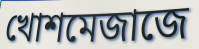
খোশমেজাজে